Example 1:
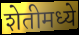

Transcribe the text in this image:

शेतीमध्ये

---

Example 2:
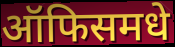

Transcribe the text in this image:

ऑफिसमधे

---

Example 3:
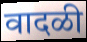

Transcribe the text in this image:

वादळी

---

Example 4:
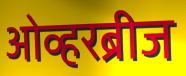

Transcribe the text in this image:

ओव्हरब्रीज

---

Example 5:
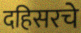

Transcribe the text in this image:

दहिसरचे